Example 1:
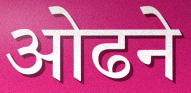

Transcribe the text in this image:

ओढने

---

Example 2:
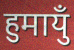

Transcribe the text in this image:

हुमायुँ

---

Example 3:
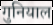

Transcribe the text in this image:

गुनियाल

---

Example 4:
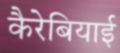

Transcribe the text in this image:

कैरेबियाई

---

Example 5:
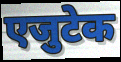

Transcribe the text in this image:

एजुटेक